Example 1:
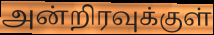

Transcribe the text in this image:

அன்றிரவுக்குள்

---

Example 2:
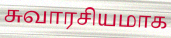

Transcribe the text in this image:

சுவாரசியமாக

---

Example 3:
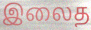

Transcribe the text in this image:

இலைத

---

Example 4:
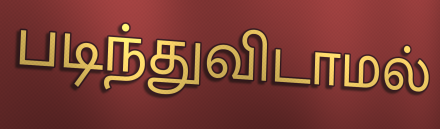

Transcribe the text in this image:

படிந்துவிடாமல்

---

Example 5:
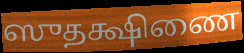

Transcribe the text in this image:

ஸுதக்ஷிணை